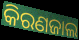
କିରଣଜାଲ